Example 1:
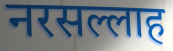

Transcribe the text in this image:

नरसल्लाह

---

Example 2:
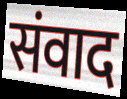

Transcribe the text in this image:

संवाद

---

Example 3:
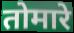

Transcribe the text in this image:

तोमारे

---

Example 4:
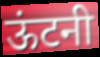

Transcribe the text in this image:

ऊंटनी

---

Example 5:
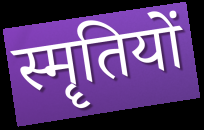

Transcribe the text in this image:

स्मॄतियों